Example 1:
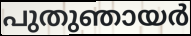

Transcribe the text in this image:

പുതുഞായർ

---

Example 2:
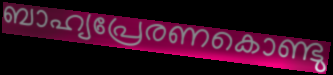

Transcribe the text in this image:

ബാഹ്യപ്രേരണകൊണ്ടു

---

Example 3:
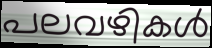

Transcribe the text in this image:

പലവഴികൾ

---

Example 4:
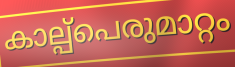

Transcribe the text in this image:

കാല്പ്പെരുമാറ്റം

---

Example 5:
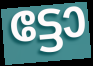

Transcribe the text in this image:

ട്ടോ